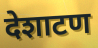
देशाटण